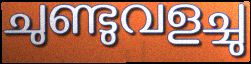
ചുണ്ടുവളച്ചു